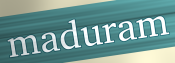
maduram